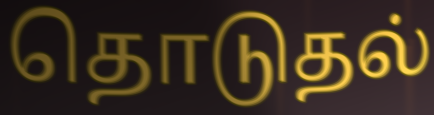
தொடுதல்